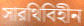
সারথিবিহীন